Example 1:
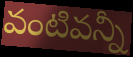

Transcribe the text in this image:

వంటివన్నీ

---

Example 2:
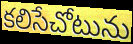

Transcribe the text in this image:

కలిసేచోటును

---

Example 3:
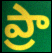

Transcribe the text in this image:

ప్రా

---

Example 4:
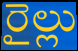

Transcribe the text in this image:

రైల్లు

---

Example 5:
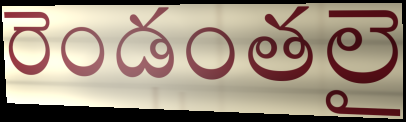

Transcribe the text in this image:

రెండంతలై